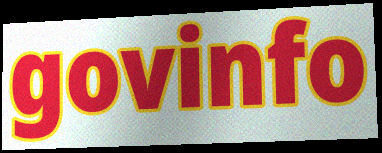
govinfo